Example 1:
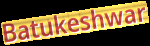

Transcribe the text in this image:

Batukeshwar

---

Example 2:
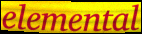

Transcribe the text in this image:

elemental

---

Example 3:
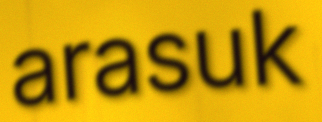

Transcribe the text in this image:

arasuk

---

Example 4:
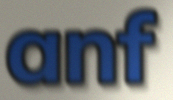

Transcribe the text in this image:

anf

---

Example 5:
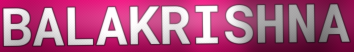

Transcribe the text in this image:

BALAKRISHNA